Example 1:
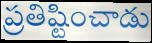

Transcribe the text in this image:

ప్రతిష్టించాడు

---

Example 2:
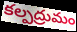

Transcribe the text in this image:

కల్పద్రుమం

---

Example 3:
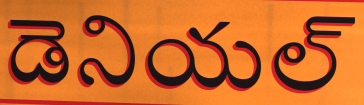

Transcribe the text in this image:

డెనియల్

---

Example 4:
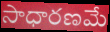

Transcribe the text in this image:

సాధారణమే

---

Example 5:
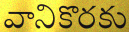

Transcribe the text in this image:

వానికొరకు